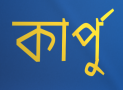
কার্পু